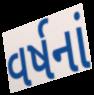
વર્ષનાં